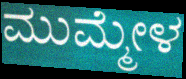
ಮುಮ್ಮೇಳ